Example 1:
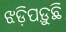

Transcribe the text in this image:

ଝଡ଼ିପଡ଼ୁଛି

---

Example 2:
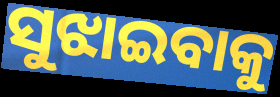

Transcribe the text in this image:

ସୁଝାଇବାକୁ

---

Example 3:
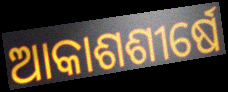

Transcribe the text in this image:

ଆକାଶଶୀର୍ଷେ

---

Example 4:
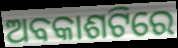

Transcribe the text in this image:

ଅବକାଶଟିରେ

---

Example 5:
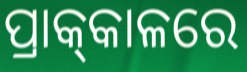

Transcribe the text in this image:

ପ୍ରାକ୍‌କାଳରେ